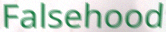
Falsehood